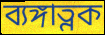
ব্যঙ্গাত্নক